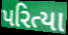
પરિત્યા